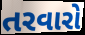
તરવારો